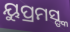
ୟୁପ୍ରମସ୍ଙ୍କ